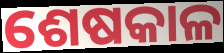
ଶେଷକାଳ